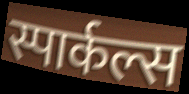
स्पार्कल्स